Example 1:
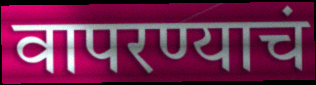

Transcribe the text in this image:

वापरण्याचं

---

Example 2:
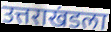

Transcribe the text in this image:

उत्तराखंडला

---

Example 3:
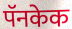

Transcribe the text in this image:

पॅनकेक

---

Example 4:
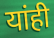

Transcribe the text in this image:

यांही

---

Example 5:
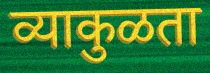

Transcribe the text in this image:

व्याकुळता